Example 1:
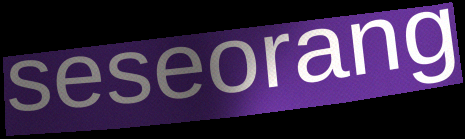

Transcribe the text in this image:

seseorang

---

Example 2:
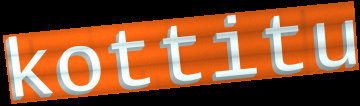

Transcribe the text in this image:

kottitu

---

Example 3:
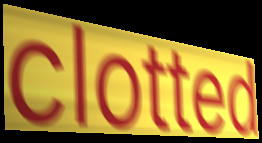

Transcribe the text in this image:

clotted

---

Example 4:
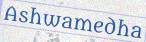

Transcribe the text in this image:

Ashwamedha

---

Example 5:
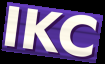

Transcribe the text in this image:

IKC